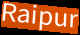
Raipur